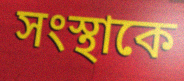
সংস্থাকে